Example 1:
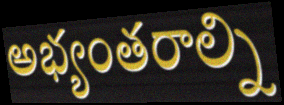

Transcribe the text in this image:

అభ్యంతరాల్ని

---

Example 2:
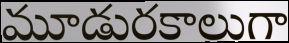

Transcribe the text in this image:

మూడురకాలుగా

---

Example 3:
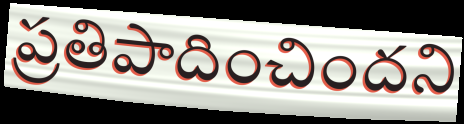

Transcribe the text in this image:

ప్రతిపాదించిందని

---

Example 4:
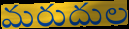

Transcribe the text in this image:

మరుదుల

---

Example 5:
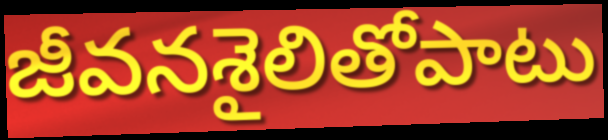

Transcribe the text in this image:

జీవనశైలితోపాటు